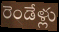
రెండేళ్లు